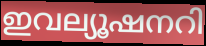
ഇവല്യൂഷനറി